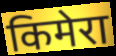
किमेरा